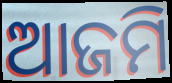
ଆଜମି